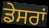
ਡੇਸਰਾਂ